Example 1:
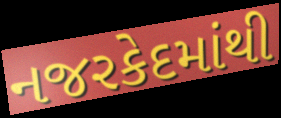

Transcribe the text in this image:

નજરકેદમાંથી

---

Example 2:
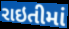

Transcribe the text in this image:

રાઇતીમાં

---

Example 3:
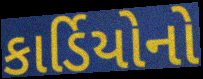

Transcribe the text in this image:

કાર્ડિયોનો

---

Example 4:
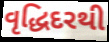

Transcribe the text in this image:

વૃદ્ધિદરથી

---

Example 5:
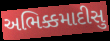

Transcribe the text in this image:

અભિક્કમાદીસુ